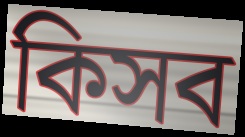
কিসব